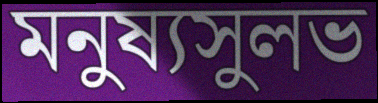
মনুষ্যসুলভ